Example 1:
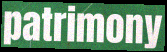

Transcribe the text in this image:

patrimony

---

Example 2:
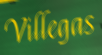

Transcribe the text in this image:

Villegas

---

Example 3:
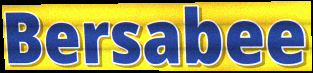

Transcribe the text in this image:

Bersabee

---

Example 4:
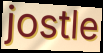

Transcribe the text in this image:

jostle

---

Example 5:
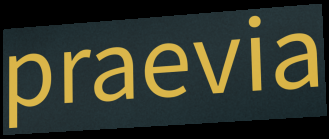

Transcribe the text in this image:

praevia